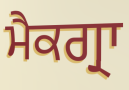
ਮੈਕਗ੍ਰਾ